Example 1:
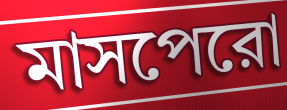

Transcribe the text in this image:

মাসপেরো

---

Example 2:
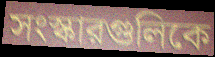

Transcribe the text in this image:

সংস্কারগুলিকে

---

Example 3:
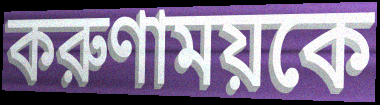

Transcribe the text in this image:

করুণাময়কে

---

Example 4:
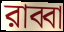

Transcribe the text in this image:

রাব্বা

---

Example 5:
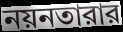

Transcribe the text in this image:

নয়নতারার